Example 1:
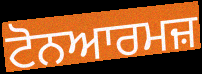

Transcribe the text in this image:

ਟੋਨਆਰਮਜ਼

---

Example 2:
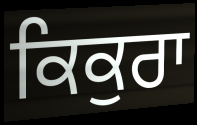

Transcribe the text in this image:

ਕਿਕੁਰਾ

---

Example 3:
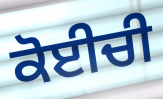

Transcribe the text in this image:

ਕੋਈਚੀ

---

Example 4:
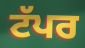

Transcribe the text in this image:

ਟੱਪਰ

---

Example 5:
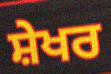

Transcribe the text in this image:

ਸ਼ੇਖਰ